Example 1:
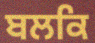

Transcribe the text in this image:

ਬਲਕਿ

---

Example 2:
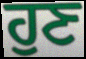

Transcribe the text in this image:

ਹੁਣ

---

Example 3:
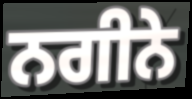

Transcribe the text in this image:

ਨਗੀਨੇ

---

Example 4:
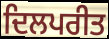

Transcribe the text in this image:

ਦਿਲਪਰੀਤ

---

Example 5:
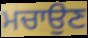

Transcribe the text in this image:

ਮਚਾਉਣ